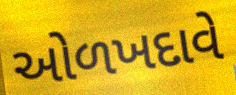
ઓળખદાવે